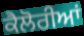
ਕੈਲੋਰੀਆਂ